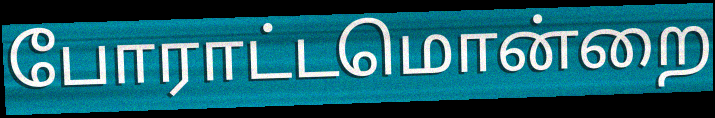
போராட்டமொன்றை